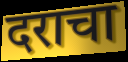
दराचा